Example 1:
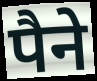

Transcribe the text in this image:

पैने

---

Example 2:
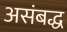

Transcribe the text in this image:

असंबद्ध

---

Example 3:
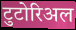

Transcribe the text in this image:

टुटोरिअल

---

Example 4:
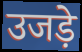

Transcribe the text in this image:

उजड़े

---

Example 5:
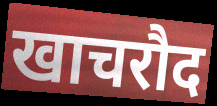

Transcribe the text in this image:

खाचरौद